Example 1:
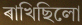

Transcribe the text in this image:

ৰাখিছিলো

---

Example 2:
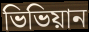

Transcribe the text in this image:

ভিভিয়ান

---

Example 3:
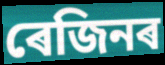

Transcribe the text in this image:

ৰেজিনৰ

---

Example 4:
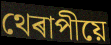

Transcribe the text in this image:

থেৰাপীয়ে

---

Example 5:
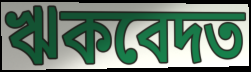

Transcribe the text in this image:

ঋকবেদত